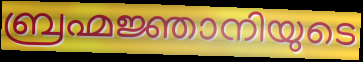
ബ്രഹ്മജ്ഞാനിയുടെ